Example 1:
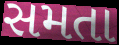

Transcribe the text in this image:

સમતા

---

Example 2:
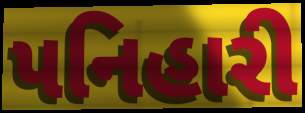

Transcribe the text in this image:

પનિહારી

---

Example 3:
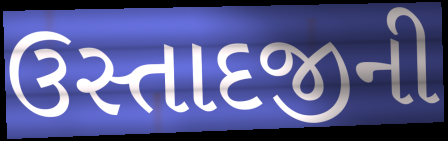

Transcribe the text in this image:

ઉસ્તાદજીની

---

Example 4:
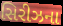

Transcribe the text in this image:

સિરીઝના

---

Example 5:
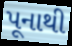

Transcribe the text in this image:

પૂનાથી